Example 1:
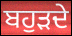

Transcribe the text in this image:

ਬਹੁੜਦੇ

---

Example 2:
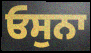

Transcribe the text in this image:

ਓਸੁਨਾ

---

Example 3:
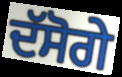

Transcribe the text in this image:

ਦੱਸੋਗੇ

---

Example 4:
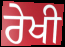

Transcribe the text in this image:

ਰੇਖੀ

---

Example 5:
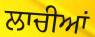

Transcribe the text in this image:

ਲਾਚੀਆਂ